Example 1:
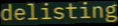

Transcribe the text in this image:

delisting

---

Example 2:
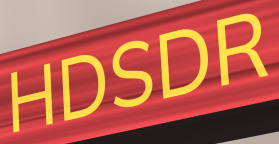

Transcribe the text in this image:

HDSDR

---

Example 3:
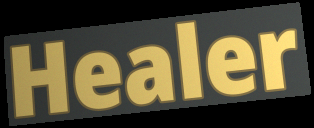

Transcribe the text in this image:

Healer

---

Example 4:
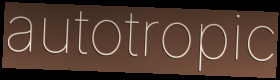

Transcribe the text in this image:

autotropic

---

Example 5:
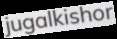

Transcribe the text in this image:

jugalkishor